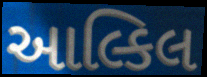
આલ્કિલ